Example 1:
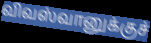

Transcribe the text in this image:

விவஸ்வானுக்குச்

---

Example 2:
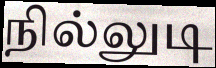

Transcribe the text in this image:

நில்லுடி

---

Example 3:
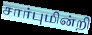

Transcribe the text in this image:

சார்புமின்றி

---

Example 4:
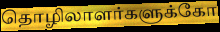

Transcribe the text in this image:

தொழிலாளர்களுக்கோ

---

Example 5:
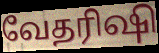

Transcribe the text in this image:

வேதரிஷி